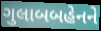
ગુલાબબહેનને